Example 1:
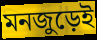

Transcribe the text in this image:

মনজুড়েই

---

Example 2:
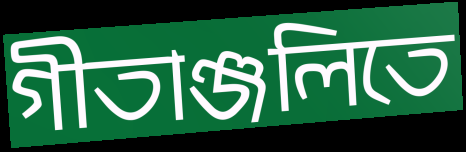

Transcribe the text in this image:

গীতাঞ্জলিতে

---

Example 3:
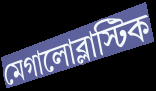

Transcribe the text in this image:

মেগালোব্লাস্টিক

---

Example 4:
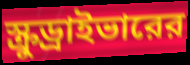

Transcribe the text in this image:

স্ক্রুড্রাইভারের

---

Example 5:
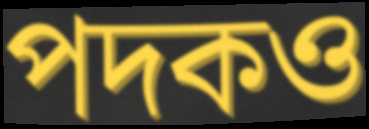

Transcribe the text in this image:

পদকও